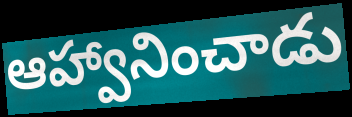
ఆహ్వానించాడు